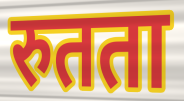
रुतता